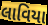
લાવિયા